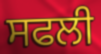
ਸਫਲੀ